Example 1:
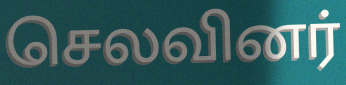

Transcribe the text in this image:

செலவினர்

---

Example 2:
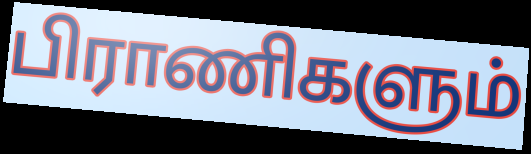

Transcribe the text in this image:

பிராணிகளும்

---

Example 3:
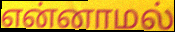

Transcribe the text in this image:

என்னாமல்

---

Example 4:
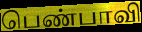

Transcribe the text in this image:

பெண்பாவி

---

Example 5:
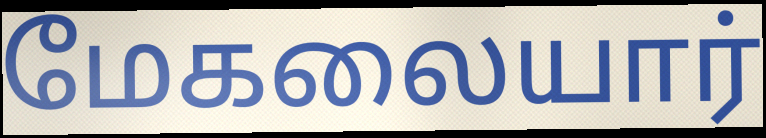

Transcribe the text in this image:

மேகலையார்